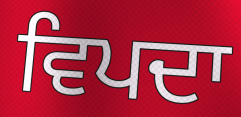
ਵਿਪਦਾ